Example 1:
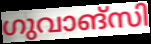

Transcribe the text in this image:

ഗുവാങ്സി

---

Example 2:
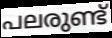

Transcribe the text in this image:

പലരുണ്ട്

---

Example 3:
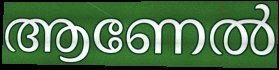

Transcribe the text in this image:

ആണേൽ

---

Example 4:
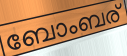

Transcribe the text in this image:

ബോംബര്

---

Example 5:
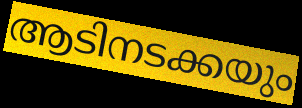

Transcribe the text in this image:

ആടിനടക്കയും